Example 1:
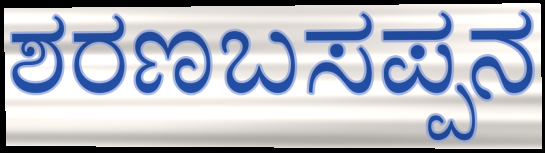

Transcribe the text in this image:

ಶರಣಬಸಪ್ಪನ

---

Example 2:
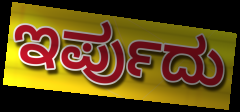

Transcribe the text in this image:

ಇರ್ಪುದು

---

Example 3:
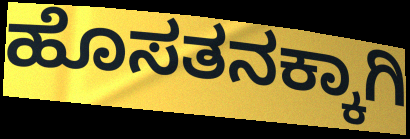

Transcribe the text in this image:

ಹೊಸತನಕ್ಕಾಗಿ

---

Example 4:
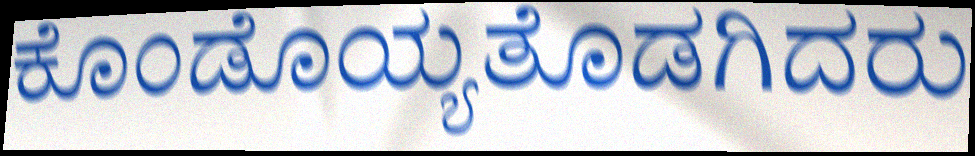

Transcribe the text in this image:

ಕೊಂಡೊಯ್ಯತೊಡಗಿದರು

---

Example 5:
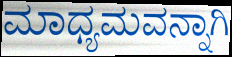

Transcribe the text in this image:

ಮಾಧ್ಯಮವನ್ನಾಗಿ